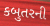
કબુતરની